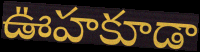
ఊహకూడా